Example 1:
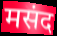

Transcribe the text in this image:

मसंद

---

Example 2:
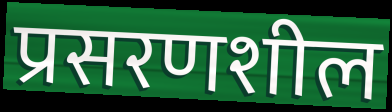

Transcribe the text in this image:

प्रसरणशील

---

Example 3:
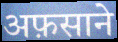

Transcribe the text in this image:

अफ़साने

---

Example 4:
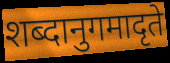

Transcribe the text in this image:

शब्दानुगमादृते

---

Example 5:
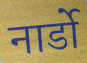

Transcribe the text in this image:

नार्डो